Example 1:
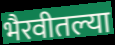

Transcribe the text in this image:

भैरवीतल्या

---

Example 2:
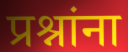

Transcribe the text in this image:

प्रश्नांना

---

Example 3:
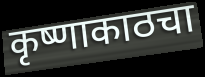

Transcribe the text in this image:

कृष्णाकाठचा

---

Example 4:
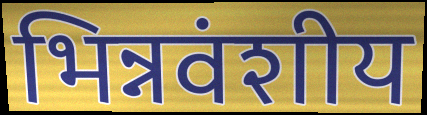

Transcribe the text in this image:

भिन्नवंशीय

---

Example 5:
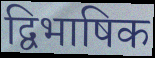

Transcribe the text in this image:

द्विभाषिक